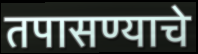
तपासण्याचे